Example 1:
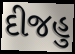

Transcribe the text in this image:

દીજહુ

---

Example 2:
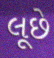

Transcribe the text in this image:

લૂછે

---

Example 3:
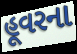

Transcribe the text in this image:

હૂવરના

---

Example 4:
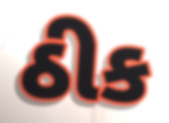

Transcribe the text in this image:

ઠીક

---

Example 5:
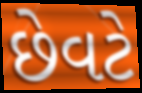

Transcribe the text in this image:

છેવટે